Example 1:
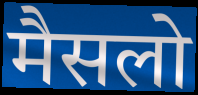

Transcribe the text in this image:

मैसलो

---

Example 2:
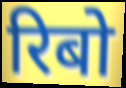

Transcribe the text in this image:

रिबो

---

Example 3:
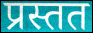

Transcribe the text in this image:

प्रस्तत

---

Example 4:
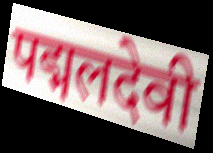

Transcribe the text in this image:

पद्मलदेवी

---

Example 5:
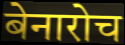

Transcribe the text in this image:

बेनारोच